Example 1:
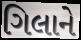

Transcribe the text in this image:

ગિલાને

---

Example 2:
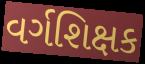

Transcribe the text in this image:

વર્ગશિક્ષક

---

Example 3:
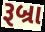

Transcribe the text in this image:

રૂબ્રા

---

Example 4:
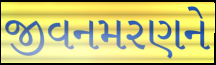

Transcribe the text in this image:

જીવનમરણને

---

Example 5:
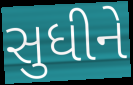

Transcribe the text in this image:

સુધીને